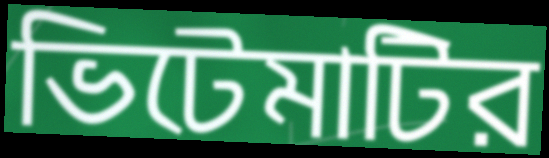
ভিটেমাটির